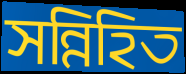
সন্নিহিত